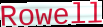
Rowell